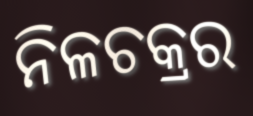
ନିଳଚକ୍ରର